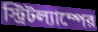
স্ট্রিটল্যাম্পের